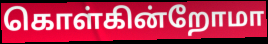
கொள்கின்றோமா